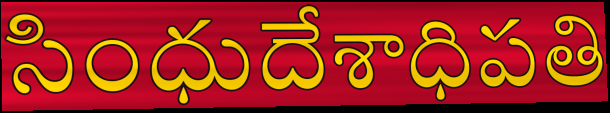
సింధుదేశాధిపతి